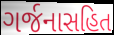
ગર્જનાસહિત